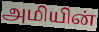
அமியின்